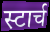
स्टार्च